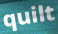
quilt